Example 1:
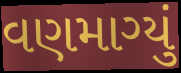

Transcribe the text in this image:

વણમાગ્યું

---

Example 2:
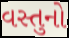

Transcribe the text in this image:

વસ્તુનો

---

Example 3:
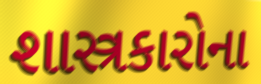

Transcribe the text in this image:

શાસ્ત્રકારોના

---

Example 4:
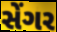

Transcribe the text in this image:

સેંગર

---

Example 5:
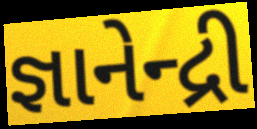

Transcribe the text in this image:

જ્ઞાનેન્દ્રી